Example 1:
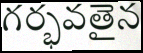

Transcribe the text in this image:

గర్భవతైన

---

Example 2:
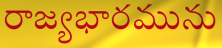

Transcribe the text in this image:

రాజ్యభారమును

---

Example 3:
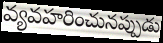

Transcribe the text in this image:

వ్యవహరించునప్పుడు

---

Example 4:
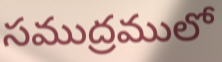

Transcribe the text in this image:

సముద్రములో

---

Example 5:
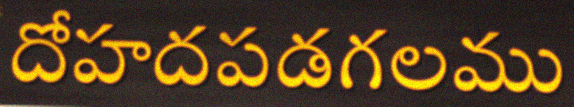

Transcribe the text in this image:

దోహదపడగలము